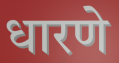
धारणे